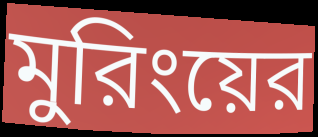
মুরিংয়ের